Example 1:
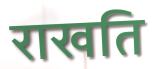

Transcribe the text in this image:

राखति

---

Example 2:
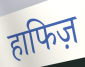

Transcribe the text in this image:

हाफिज़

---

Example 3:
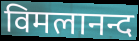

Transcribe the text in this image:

विमलानन्द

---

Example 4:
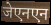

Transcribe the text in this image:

जेएनएन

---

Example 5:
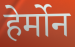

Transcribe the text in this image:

हेर्मोन